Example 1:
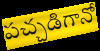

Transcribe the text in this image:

పచ్చడిగానో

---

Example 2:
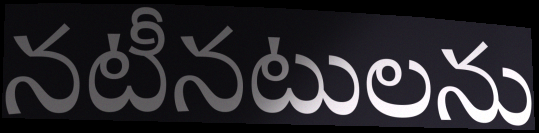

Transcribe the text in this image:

నటీనటులను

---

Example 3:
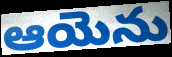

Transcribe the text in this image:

ఆయెను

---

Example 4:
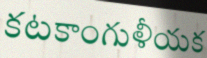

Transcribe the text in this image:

కటకాంగుళీయక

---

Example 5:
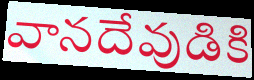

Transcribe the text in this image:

వానదేవుడికి